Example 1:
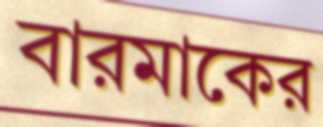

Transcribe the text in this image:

বারমাকের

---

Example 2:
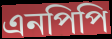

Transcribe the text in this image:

এনপিপি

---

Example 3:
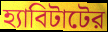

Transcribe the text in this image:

হ্যাবিটাটের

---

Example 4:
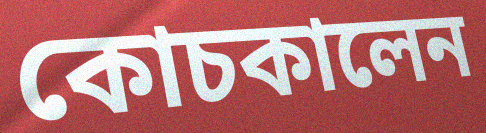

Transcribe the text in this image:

কোচকালেন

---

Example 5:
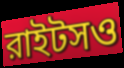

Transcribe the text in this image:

রাইটসও